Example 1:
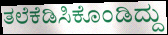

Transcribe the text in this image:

ತಲೆಕೆಡಿಸಿಕೊಂಡಿದ್ದು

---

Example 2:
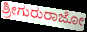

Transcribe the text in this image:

ಶ್ರೀಗುರುರಾಜೋ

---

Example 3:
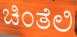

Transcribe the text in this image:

ಚಿಂತೆಲಿ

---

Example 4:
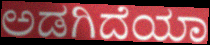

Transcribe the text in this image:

ಅಡಗಿದೆಯಾ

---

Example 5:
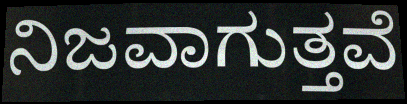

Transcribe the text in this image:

ನಿಜವಾಗುತ್ತವೆ